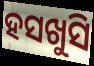
ହସଖୁସି